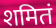
शमितं